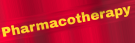
Pharmacotherapy